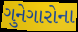
ગુનેગારોના